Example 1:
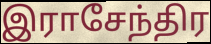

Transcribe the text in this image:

இராசேந்திர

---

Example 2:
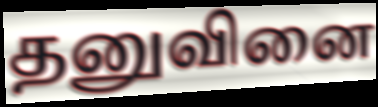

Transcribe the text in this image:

தனுவினை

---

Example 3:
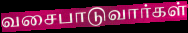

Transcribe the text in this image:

வசைபாடுவார்கள்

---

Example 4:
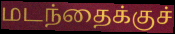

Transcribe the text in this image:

மடந்தைக்குச்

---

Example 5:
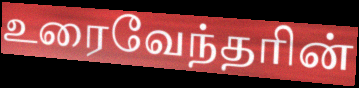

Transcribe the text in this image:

உரைவேந்தரின்